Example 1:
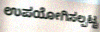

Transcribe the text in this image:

ಉಪಯೋಗಿಸಲ್ಪಟ್ಟ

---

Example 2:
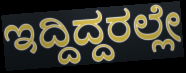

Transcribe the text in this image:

ಇದ್ದಿದ್ದರಲ್ಲೇ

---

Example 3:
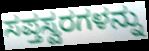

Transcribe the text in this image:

ಸಪ್ತಸ್ವರಗಳನ್ನು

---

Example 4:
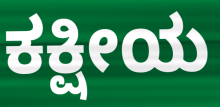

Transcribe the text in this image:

ಕಕ್ಷೀಯ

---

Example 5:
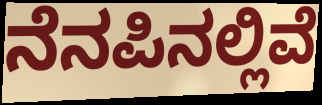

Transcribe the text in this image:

ನೆನಪಿನಲ್ಲಿವೆ